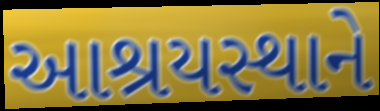
આશ્રયસ્થાને